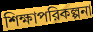
শিক্ষাপরিকল্পনা